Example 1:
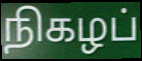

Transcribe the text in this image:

நிகழப்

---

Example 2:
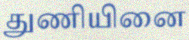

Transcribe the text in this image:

துணியினை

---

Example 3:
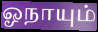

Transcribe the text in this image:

ஓநாயும்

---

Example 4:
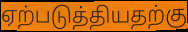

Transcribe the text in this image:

ஏற்படுத்தியதற்கு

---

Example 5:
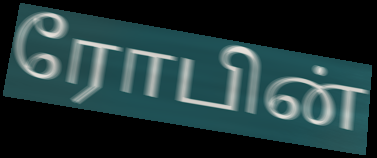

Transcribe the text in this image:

ரோபின்